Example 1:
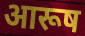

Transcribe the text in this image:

आरूष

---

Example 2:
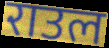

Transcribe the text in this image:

राउल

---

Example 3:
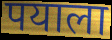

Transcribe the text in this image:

पयाला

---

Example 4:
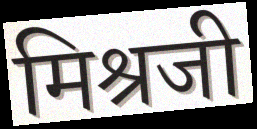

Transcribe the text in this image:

मिश्रजी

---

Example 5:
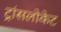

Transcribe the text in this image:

ट्रांसलोकेट